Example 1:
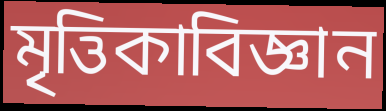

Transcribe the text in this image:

মৃত্তিকাবিজ্ঞান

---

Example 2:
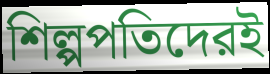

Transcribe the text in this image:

শিল্পপতিদেরই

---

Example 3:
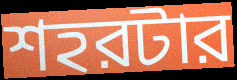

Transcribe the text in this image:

শহরটার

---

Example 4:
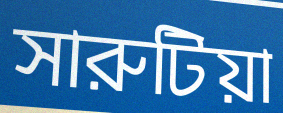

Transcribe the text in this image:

সারুটিয়া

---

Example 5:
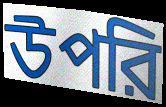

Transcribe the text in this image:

উপরি